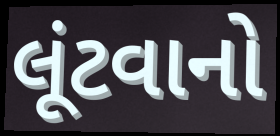
લૂંટવાનો